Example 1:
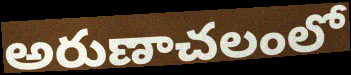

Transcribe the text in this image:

అరుణాచలంలో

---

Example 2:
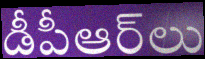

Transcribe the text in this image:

డీపీఆర్‌లు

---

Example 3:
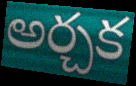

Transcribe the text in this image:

అర్చక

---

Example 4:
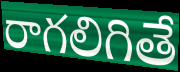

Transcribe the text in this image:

రాగలిగితే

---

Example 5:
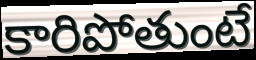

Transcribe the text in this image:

కారిపోతుంటే